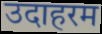
उदाहरम